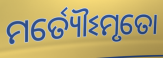
ମର୍ତ୍ୟୌଽମୃତୋ